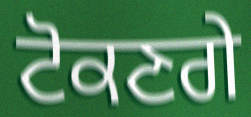
ਟੋਕਣਗੇ